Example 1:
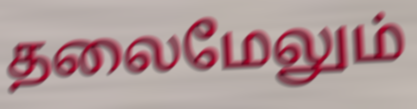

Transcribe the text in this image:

தலைமேலும்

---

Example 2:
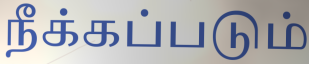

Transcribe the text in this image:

நீக்கப்படும்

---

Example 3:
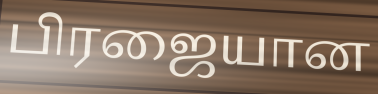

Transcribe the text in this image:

பிரஜையான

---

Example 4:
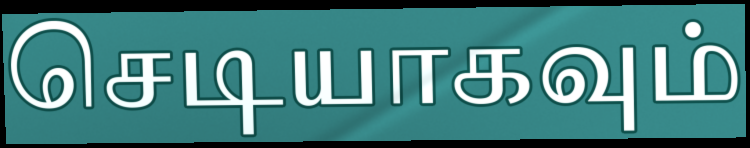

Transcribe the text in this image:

செடியாகவும்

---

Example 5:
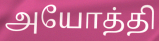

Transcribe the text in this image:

அயோத்தி